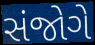
સંજોગે